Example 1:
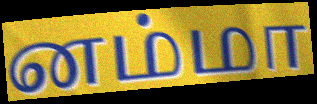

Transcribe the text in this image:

னம்மா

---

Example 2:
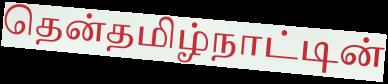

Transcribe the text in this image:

தென்தமிழ்நாட்டின்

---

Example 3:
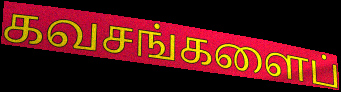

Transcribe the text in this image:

கவசங்களைப்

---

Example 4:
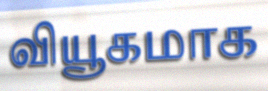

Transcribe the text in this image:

வியூகமாக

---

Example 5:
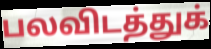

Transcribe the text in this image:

பலவிடத்துக்